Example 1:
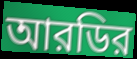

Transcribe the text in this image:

আরডির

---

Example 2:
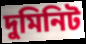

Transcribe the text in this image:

দুমিনিট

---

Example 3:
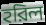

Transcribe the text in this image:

হরিল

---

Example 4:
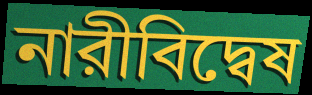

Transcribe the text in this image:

নারীবিদ্বেষ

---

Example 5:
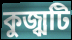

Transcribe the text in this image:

কুজ্ঝটি